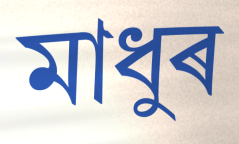
মাধুৰ